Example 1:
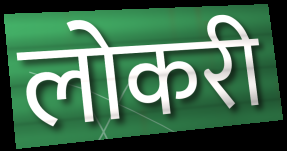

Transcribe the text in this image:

लोकरी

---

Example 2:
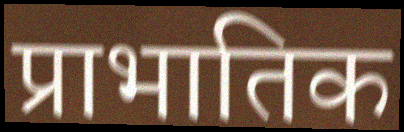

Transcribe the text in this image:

प्राभातिक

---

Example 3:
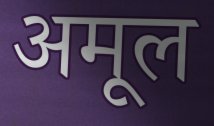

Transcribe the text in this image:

अमूल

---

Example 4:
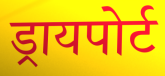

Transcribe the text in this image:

ड्रायपोर्ट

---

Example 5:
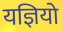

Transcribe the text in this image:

यज्ञियो